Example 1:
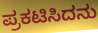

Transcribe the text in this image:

ಪ್ರಕಟಿಸಿದನು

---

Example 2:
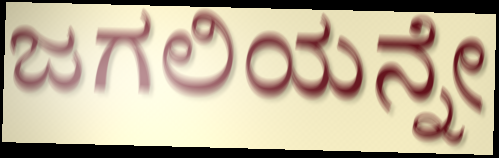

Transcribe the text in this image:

ಜಗಲಿಯನ್ನೇ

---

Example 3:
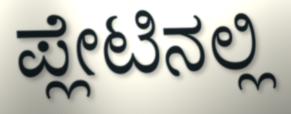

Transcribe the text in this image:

ಪ್ಲೇಟಿನಲ್ಲಿ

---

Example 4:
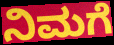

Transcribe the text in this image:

ನಿಮಗೆ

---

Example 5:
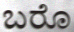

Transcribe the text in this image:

ಬರೊ